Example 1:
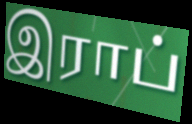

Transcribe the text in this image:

இராப்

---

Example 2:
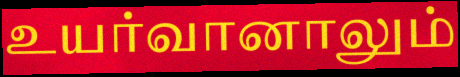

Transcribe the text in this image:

உயர்வானாலும்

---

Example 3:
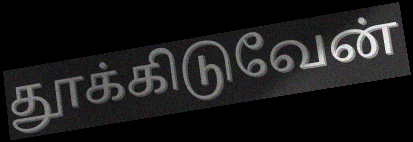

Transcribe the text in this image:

தூக்கிடுவேன்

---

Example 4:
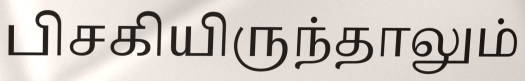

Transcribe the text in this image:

பிசகியிருந்தாலும்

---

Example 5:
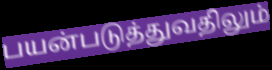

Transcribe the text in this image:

பயன்படுத்துவதிலும்